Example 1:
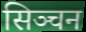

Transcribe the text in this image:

सिञ्चन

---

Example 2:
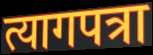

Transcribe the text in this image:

त्यागपत्रा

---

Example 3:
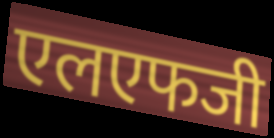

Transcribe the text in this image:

एलएफजी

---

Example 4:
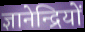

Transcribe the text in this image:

ज्ञानेन्द्रियों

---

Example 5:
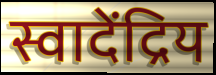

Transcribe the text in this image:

स्वादेंद्रिय